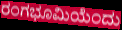
ರಂಗಭೂಮಿಯೆಂದು